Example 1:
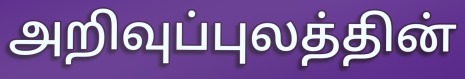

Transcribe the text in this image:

அறிவுப்புலத்தின்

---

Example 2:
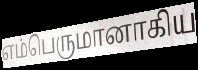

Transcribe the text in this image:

எம்பெருமானாகிய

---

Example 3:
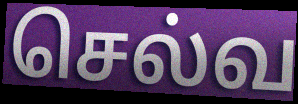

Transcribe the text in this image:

செல்வ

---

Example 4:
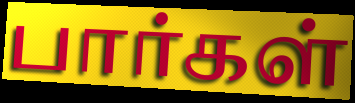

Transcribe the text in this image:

பார்கள்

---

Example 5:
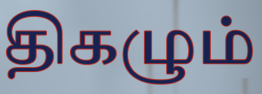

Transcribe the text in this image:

திகழும்